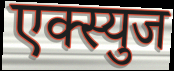
एक्स्युज